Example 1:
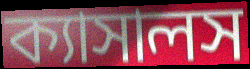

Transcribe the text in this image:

ক্যাসালস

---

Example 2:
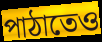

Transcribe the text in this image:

পাঠাতেও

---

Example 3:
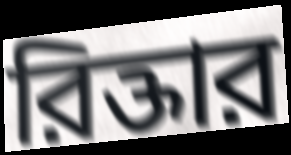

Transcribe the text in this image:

রিক্তার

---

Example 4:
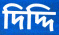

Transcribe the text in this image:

দিদ্দি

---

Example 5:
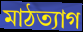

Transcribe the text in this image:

মাঠত্যাগ